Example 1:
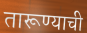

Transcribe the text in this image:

तारूण्याची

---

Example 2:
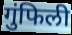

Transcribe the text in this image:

गुंफिली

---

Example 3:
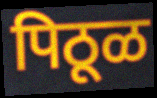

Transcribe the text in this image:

पिठूळ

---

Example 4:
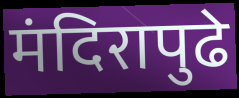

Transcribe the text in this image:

मंदिरापुढे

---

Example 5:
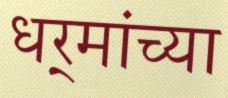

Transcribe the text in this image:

धर्मांच्या